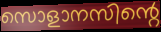
സൊളാനസിന്റെ